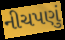
નીચપણું